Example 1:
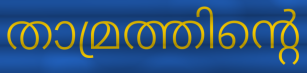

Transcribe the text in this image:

താമ്രത്തിന്റെ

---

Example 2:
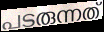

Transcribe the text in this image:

പടരുന്നത്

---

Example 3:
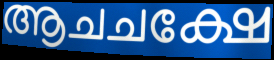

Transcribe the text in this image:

ആചചക്ഷേ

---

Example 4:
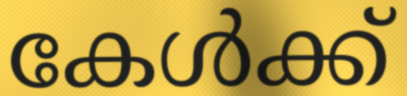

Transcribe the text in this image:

കേൾക്ക്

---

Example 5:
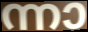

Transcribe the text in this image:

ന്നാ